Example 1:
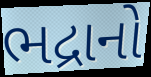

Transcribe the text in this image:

ભદ્રાનો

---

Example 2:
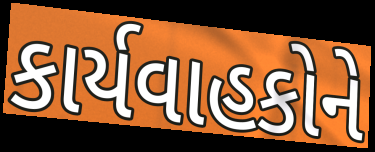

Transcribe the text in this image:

કાર્યવાહકોને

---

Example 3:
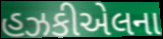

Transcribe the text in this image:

હઝકીએલના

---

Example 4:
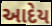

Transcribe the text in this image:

આદેય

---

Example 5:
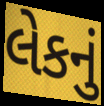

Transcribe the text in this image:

લેકનું